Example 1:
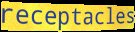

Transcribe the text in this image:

receptacles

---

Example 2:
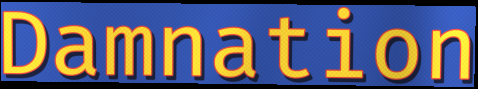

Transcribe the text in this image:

Damnation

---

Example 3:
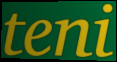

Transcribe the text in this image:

teni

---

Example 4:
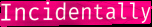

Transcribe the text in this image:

Incidentally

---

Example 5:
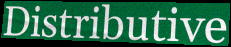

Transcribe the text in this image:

Distributive